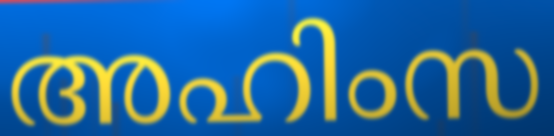
അഹിംസ